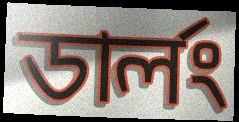
ডার্লং